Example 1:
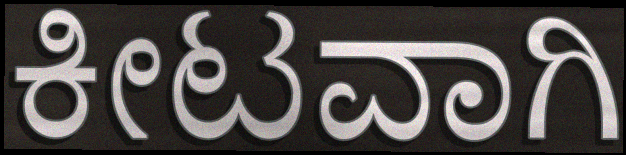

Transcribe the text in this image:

ಕೀಟವಾಗಿ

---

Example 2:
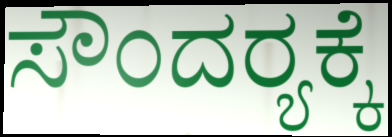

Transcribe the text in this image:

ಸೌಂದರ‍್ಯಕ್ಕೆ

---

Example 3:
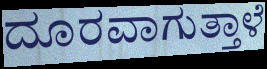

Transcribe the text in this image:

ದೂರವಾಗುತ್ತಾಳೆ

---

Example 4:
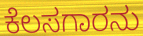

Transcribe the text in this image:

ಕೆಲಸಗಾರನು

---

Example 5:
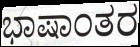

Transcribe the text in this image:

ಭಾಷಾಂತರ